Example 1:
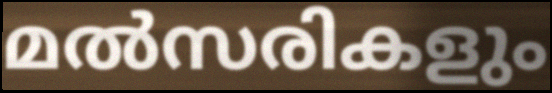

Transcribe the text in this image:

മൽസരികളും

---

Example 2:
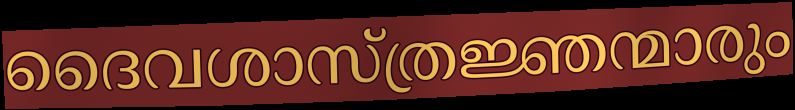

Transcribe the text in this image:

ദൈവശാസ്ത്രജ്ഞന്മാരും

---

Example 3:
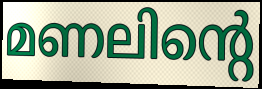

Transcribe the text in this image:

മണലിന്റെ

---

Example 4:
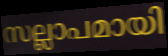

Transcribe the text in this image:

സല്ലാപമായി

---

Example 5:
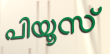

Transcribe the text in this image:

പിയൂസ്